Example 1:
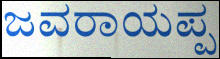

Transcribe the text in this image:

ಜವರಾಯಪ್ಪ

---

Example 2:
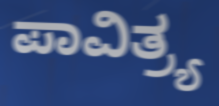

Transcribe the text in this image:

ಪಾವಿತ್ರ್ಯ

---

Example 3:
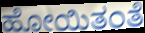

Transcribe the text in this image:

ಹೋಯಿತಂತೆ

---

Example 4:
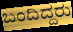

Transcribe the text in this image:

ಬಂದಿದ್ದರು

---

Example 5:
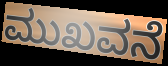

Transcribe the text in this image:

ಮುಖವನೆ